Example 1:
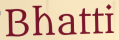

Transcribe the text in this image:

Bhatti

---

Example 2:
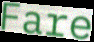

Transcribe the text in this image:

Fare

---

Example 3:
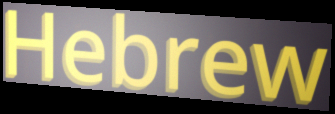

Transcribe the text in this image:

Hebrew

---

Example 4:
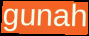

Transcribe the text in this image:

gunah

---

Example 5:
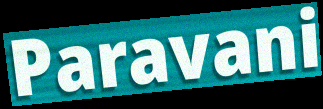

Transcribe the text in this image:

Paravani